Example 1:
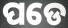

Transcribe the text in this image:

ପଡେ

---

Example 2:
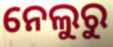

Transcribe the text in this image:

ନେଲୁରୁ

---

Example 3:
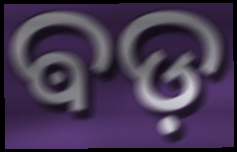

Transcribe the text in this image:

ଵଡ଼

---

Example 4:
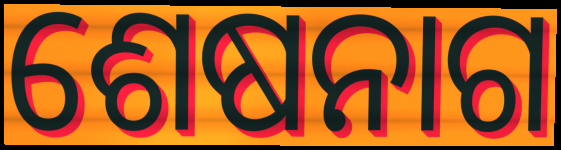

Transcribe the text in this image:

ଶେଷନାଗ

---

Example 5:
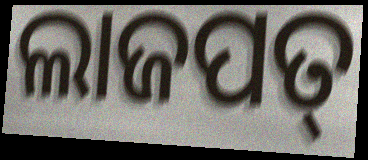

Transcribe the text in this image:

ଲାଜପତ୍